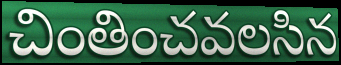
చింతించవలసిన